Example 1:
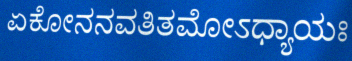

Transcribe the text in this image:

ಏಕೋನನವತಿತಮೋಽಧ್ಯಾಯಃ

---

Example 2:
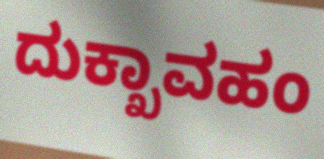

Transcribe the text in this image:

ದುಕ್ಖಾವಹಂ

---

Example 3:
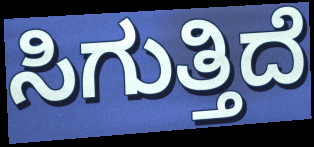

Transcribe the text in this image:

ಸಿಗುತ್ತಿದೆ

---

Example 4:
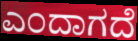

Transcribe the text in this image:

ಎಂದಾಗದೆ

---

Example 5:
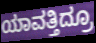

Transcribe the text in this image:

ಯಾವತ್ತಿದ್ರೂ